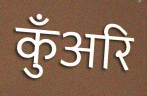
कुँअरि